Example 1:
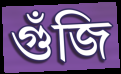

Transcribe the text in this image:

গুঁজি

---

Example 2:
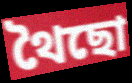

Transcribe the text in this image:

থৈছো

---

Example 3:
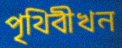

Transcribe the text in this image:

পৃথিবীখন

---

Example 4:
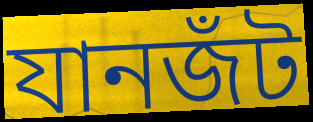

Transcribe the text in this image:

যানজঁট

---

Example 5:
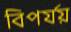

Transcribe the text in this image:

বিপৰ্যয়